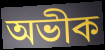
অভীক